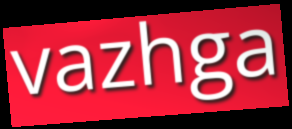
vazhga